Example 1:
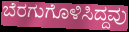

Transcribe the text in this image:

ಬೆರಗುಗೊಳಿಸಿದ್ದವು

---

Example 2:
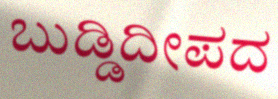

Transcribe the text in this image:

ಬುಡ್ಡಿದೀಪದ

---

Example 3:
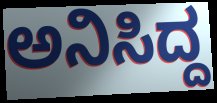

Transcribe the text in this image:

ಅನಿಸಿದ್ದ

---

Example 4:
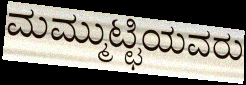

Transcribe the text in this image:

ಮಮ್ಮುಟ್ಟಿಯವರು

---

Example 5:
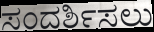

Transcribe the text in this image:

ಸಂದರ್ಶಿಸಲು